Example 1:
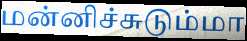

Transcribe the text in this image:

மன்னிச்சுடும்மா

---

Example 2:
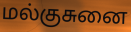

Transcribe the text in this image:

மல்குசுனை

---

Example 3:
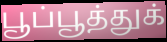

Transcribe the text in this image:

பூப்பூத்துக்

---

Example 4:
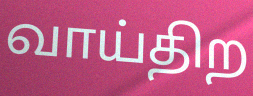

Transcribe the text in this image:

வாய்திற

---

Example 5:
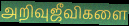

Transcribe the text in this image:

அறிவுஜீவிகளை